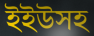
ইইউসহ